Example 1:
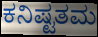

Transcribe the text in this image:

ಕನಿಷ್ಟತಮ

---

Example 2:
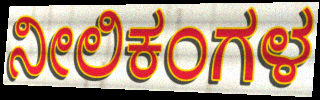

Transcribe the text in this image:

ನೀಲಿಕಂಗಳ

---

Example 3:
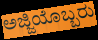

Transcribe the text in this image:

ಅಜ್ಜಿಯೊಬ್ಬರು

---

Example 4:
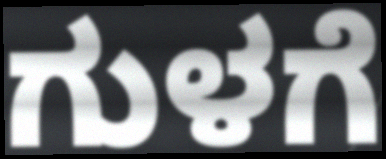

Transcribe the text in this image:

ಗುಳಗೆ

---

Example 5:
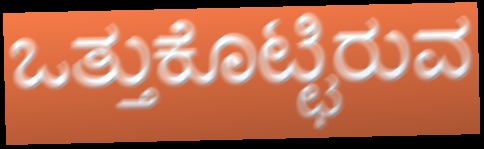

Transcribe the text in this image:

ಒತ್ತುಕೊಟ್ಟಿರುವ